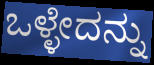
ಒಳ್ಳೇದನ್ನು